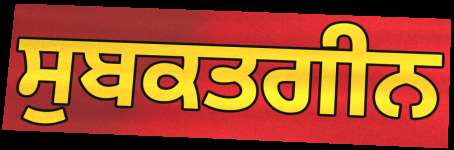
ਸੁਬਕਤਗੀਨ